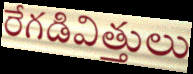
రేగడివిత్తులు